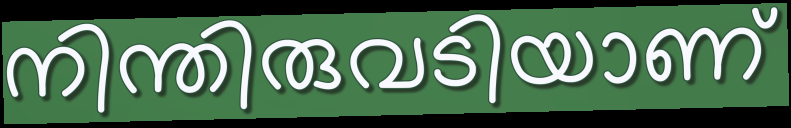
നിന്തിരുവടിയാണ്